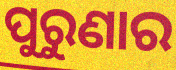
ପୁରୁଣାର